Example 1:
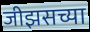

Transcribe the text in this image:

जीझसच्या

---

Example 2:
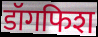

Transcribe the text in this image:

डॉगफिश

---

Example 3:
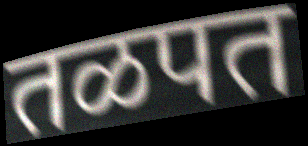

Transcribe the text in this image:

तळपत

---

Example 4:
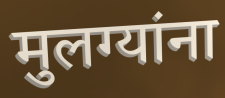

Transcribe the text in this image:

मुलग्यांना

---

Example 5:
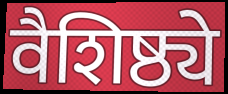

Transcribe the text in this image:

वैशिष्ठ्ये